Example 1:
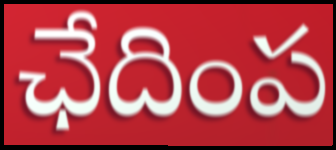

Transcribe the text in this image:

ఛేదింప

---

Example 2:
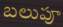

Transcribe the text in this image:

బలుపూ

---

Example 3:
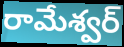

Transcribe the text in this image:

రామేశ్వర్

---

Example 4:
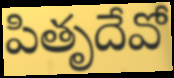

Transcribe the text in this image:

పితృదేవో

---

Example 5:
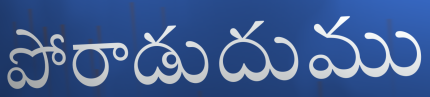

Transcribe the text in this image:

పోరాడుదుము